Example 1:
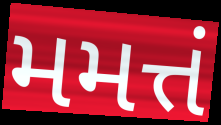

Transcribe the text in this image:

મમત્તં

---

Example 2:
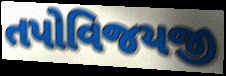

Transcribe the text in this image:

તપોવિજયજી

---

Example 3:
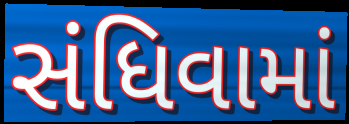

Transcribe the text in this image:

સંધિવામાં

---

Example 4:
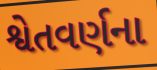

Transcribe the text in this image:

શ્વેતવર્ણના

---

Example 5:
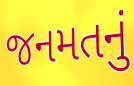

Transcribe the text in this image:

જનમતનું